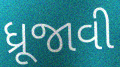
ધ્રૂજાવી